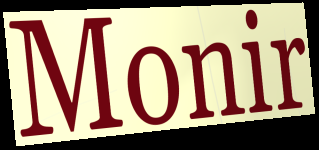
Monir